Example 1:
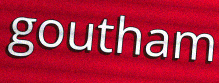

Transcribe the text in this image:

goutham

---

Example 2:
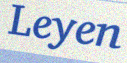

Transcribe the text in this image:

Leyen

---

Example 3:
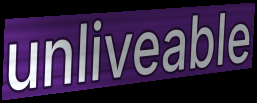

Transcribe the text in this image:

unliveable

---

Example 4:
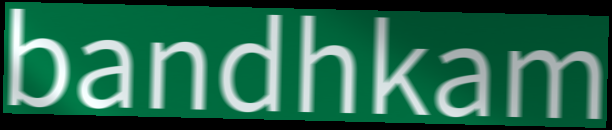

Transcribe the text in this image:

bandhkam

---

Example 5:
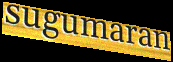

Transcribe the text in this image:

sugumaran